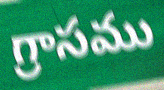
గ్రాసము